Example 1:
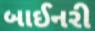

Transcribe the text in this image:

બાઈનરી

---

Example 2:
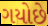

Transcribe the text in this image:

ગયોછે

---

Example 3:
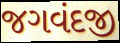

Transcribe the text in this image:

જગવંદજી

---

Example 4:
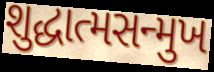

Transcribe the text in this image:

શુદ્ધાત્મસન્મુખ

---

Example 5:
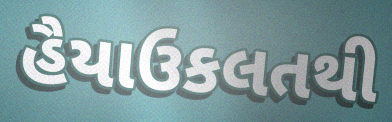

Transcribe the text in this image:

હૈયાઉકલતથી